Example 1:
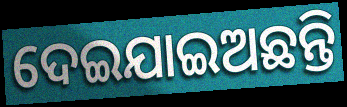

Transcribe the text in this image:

ଦେଇଯାଇଅଛନ୍ତି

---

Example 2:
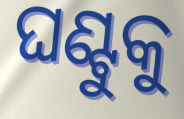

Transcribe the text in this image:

ଘଣ୍ଟୁକୁ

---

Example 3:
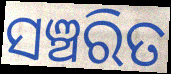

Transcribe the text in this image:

ସଞ୍ଚରିତ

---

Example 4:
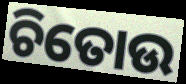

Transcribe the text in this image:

ଚିତୋଉ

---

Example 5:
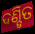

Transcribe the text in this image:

ଦଣ୍ଡିତ